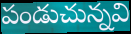
పండుచున్నవి